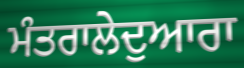
ਮੰਤਰਾਲੇਦੁਆਰਾ